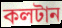
কলটান